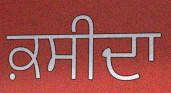
ਕ਼ਸੀਦਾ